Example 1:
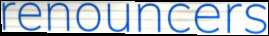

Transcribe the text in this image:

renouncers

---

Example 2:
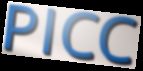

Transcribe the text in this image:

PICC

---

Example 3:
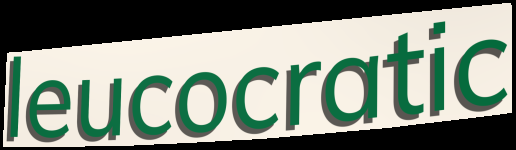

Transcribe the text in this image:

leucocratic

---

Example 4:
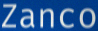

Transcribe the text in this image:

Zanco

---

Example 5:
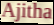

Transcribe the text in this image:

Ajitha